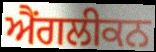
ਐਂਗਲੀਕਨ